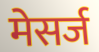
मेसर्ज